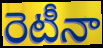
రెటీనా